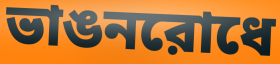
ভাঙনরোধে